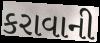
કરાવાની